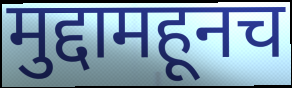
मुद्दामहूनच